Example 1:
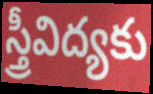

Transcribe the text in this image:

స్త్రీవిద్యకు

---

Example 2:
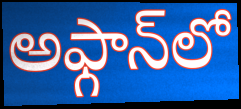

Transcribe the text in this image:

అఫ్గాన్‌లో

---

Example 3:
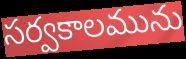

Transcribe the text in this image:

సర్వకాలమును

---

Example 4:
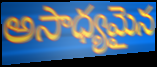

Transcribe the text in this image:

అసాధ్యమైన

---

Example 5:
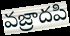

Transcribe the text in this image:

వజ్రాదపి